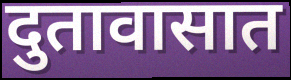
दुतावासात